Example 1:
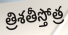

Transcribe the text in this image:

త్రిశతీస్తోత్ర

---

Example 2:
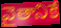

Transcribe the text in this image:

వైతానికే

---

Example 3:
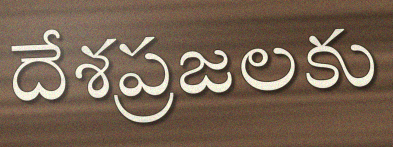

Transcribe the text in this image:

దేశప్రజలకు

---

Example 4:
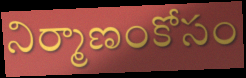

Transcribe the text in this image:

నిర్మాణంకోసం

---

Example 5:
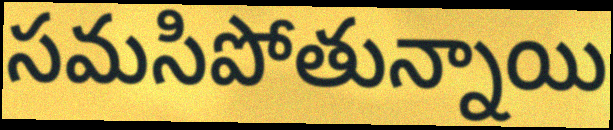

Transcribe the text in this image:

సమసిపోతున్నాయి